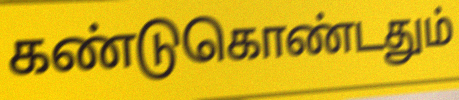
கண்டுகொண்டதும்